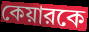
কেয়ারকে